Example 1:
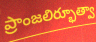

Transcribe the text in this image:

ప్రాంజలిర్భూత్వా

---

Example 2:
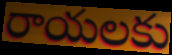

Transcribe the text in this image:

రాయలకు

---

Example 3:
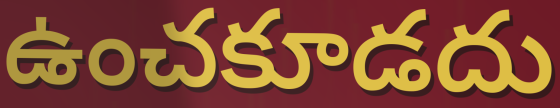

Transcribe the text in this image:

ఉంచకూడదు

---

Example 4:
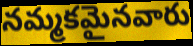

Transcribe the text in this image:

నమ్మకమైనవారు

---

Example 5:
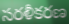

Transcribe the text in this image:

సరళీకరణ